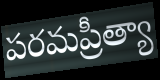
పరమప్రీత్యా